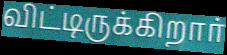
விட்டிருக்கிறார்